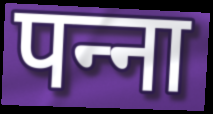
पन्‍ना